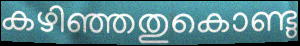
കഴിഞ്ഞതുകൊണ്ടു